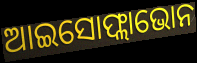
ଆଇସୋଫ୍ଲାଭୋନ